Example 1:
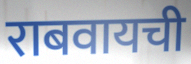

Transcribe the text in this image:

राबवायची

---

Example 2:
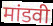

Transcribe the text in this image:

मांडवी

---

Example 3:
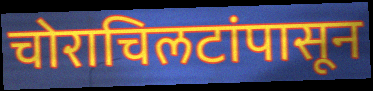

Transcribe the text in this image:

चोराचिलटांपासून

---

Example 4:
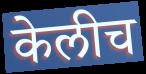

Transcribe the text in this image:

केलीच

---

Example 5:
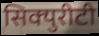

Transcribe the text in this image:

सिक्युरीटी